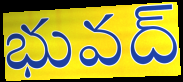
భువద్